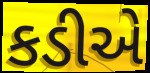
કડીએ